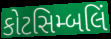
કોટસિમ્બલિં